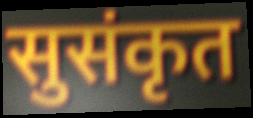
सुसंकृत